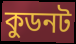
কুডনট